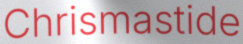
Chrismastide